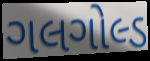
ગલગોલ્ડ